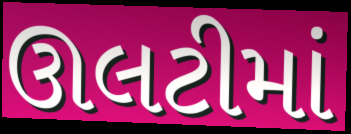
ઊલટીમાં